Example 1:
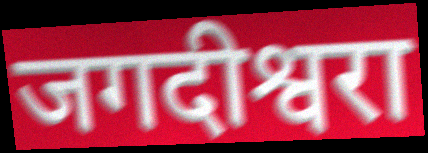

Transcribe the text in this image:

जगदीश्वरा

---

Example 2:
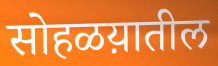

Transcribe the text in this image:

सोहळय़ातील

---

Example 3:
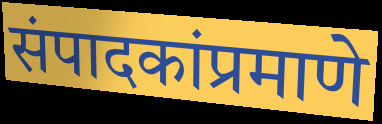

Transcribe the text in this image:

संपादकांप्रमाणे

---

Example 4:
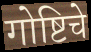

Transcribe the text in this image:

गोष्टिचे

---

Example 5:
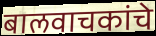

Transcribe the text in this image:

बालवाचकांचे